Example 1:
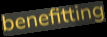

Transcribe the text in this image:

benefitting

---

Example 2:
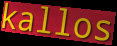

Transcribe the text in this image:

kallos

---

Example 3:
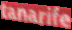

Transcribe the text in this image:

tanarife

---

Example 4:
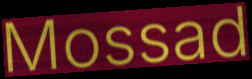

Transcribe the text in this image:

Mossad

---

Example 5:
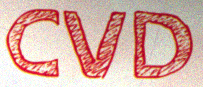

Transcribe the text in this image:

CVD